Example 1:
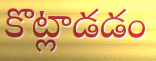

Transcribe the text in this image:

కొట్లాడడం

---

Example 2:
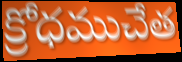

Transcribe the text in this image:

క్రోధముచేత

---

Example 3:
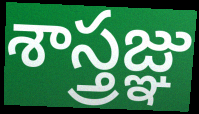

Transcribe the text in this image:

శాస్త్రజ్ఞు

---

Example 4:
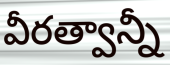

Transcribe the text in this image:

వీరత్వాన్నీ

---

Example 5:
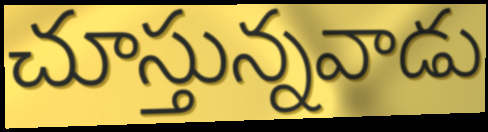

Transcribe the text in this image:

చూస్తున్నవాడు